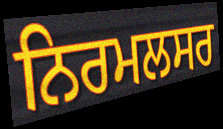
ਨਿਰਮਲਸਰ